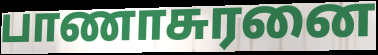
பாணாசுரனை